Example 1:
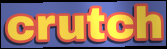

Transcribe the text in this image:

crutch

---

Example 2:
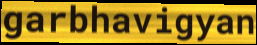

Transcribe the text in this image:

garbhavigyan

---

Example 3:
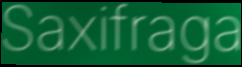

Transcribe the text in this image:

Saxifraga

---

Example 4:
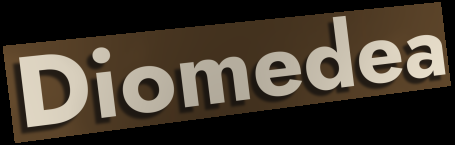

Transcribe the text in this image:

Diomedea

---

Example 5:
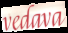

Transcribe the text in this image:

vedava